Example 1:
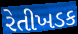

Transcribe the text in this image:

રેતીખડક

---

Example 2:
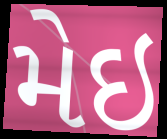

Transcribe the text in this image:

મેઇ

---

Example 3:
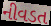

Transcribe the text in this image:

નીવડત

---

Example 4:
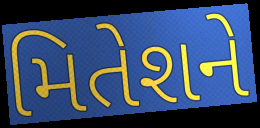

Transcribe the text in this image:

મિતેશને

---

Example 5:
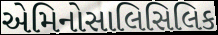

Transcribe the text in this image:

એમિનોસાલિસિલિક